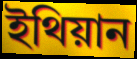
ইথিয়ান